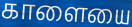
காளையை